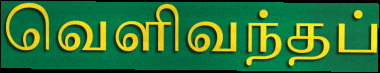
வெளிவந்தப்